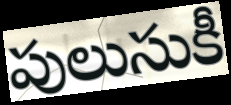
పులుసుకీ